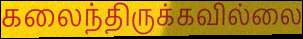
கலைந்திருக்கவில்லை